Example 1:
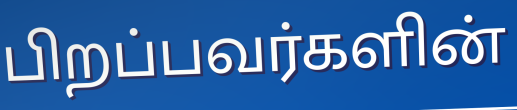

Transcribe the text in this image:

பிறப்பவர்களின்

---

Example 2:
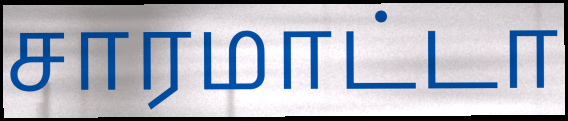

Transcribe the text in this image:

சாரமாட்டா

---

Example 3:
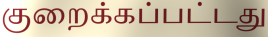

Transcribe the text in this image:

குறைக்கப்பட்டது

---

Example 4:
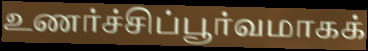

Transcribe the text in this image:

உணர்ச்சிப்பூர்வமாகக்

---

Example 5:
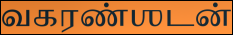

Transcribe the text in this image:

வகரண்ஶடன்